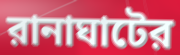
রানাঘাটের